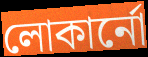
লোকার্নো